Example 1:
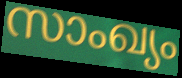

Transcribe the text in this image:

സാംഖ്യം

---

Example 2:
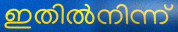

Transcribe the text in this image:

ഇതിൽനിന്ന്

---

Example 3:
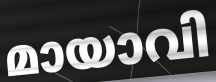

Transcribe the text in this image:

മായാവി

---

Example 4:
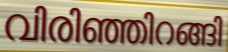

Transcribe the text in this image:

വിരിഞ്ഞിറങ്ങി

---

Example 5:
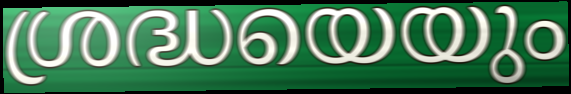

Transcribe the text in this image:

ശ്രദ്ധയെയും